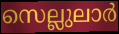
സെല്ലുലാർ